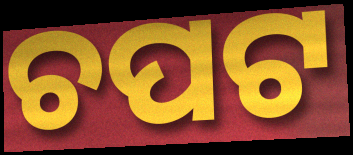
ଚପଟ